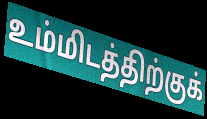
உம்மிடத்திற்குக்